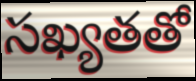
సఖ్యతతో